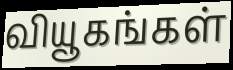
வியூகங்கள்